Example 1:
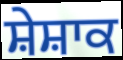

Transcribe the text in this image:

ਸ਼ੇਸ਼ਾਕ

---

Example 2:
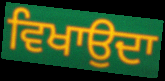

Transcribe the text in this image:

ਵਿਖਾਉਦਾ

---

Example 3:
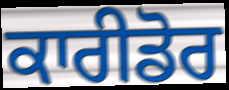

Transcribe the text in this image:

ਕਾਰੀਡੋਰ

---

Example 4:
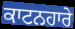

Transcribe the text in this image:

ਕਾਟਨਹਾਰੇ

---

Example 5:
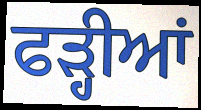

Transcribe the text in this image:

ਫੜ੍ਹੀਆਂ